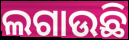
ଲଗାଉଛି